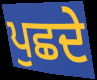
ਪੁਛਦੇ